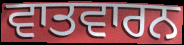
ਵਾਤਵਾਰਨ